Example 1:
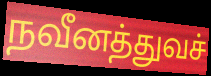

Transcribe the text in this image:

நவீனத்துவச்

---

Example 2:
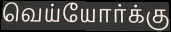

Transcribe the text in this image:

வெய்யோர்க்கு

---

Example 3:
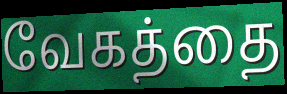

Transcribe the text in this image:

வேகத்தை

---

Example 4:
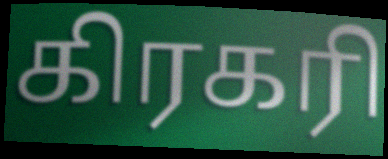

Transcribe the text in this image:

கிரகரி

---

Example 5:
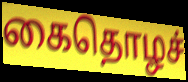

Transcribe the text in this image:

கைதொழச்